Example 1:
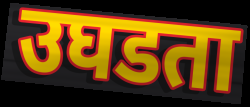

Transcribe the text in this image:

उघडता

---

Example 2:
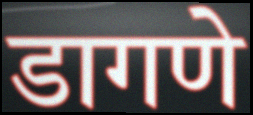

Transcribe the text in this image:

डागणे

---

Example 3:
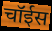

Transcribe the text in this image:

चॉईस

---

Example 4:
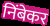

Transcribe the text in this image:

निंबेकर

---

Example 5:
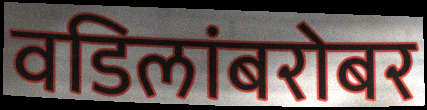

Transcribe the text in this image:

वडिलांबरोबर